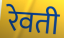
रेवती